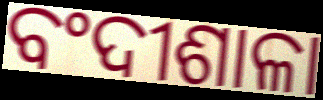
ବଂଦୀଶାଳା